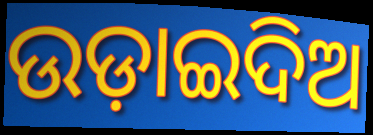
ଉଡ଼ାଇଦିଅ